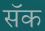
सॅक